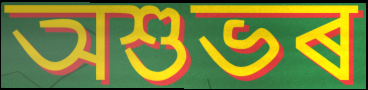
অশুভৰ